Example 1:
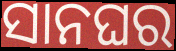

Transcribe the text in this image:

ସାନଘର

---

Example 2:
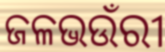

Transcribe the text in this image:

ଜଳଭଉଁରୀ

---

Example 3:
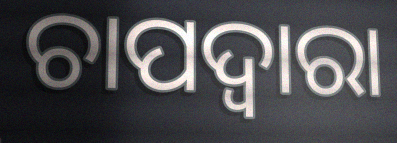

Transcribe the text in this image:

ଚାପଦ୍ବାରା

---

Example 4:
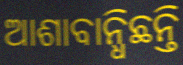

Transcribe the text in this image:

ଆଶାବାନ୍ଧିଛନ୍ତି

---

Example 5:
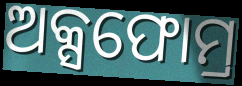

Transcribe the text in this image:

ଅକ୍ସଫୋମ୍ର